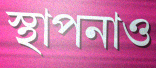
স্থাপনাও